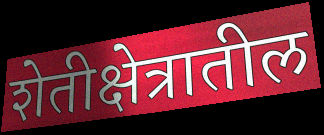
शेतीक्षेत्रातील